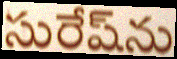
సురేష్‌ను